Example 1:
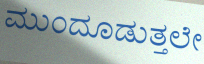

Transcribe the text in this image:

ಮುಂದೂಡುತ್ತಲೇ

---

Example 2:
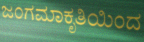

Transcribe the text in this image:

ಜಂಗಮಾಕೃತಿಯಿಂದ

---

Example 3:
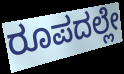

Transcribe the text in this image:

ರೂಪದಲ್ಲೇ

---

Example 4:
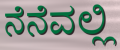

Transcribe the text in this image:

ನೆನೆವಲ್ಲಿ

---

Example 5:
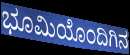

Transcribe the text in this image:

ಭೂಮಿಯೊಂದಿಗಿನ